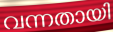
വന്നതായി